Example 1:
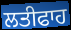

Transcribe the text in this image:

ਲਤੀਫਾਹ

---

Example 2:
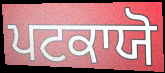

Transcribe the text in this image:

ਪਟਕਾਯੋ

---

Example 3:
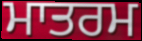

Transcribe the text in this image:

ਮਾਤਰਮ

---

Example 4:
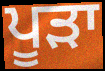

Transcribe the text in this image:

ਪੂੜਾ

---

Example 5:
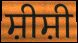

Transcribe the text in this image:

ਸ਼ੀਸ਼ੀ